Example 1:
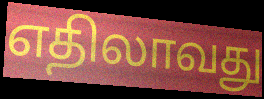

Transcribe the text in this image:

எதிலாவது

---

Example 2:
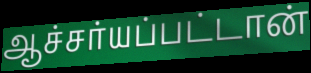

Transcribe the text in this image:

ஆச்சர்யப்பட்டான்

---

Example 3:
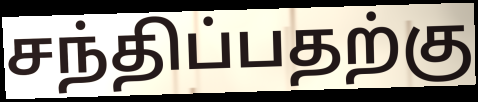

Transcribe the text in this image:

சந்திப்பதற்கு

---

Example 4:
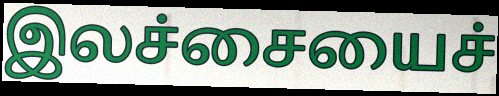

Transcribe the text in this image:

இலச்சையைச்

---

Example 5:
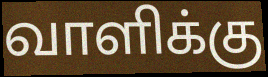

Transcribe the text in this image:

வாளிக்கு